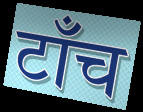
टाँच